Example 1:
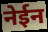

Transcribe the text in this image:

नेईन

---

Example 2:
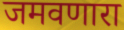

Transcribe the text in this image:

जमवणारा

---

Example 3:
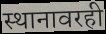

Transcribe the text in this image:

स्थानावरही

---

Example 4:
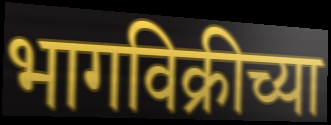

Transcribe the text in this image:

भागविक्रीच्या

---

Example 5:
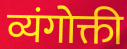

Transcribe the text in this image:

व्यंगोक्ती